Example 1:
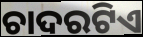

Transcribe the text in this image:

ଚାଦରଟିଏ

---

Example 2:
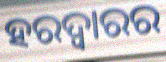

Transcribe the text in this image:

ହରଦ୍ୱାରର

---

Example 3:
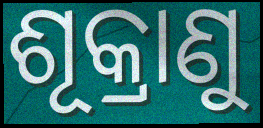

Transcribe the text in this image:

ଶୂକ୍ରାଣୁ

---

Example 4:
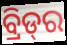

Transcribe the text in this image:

ବ୍ରିଡ୍‌ର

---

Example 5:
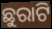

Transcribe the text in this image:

ଛୁରାଟି